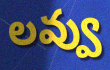
లవ్వు